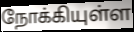
நோக்கியுள்ள